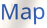
Map